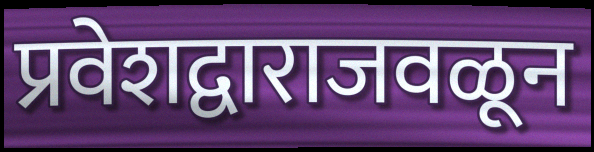
प्रवेशद्वाराजवळून